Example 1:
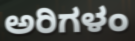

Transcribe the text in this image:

ಅರಿಗಳಂ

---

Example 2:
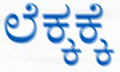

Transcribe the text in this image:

ಲೆಕ್ಕಕ್ಕೆ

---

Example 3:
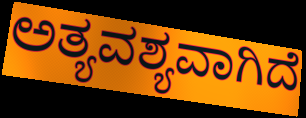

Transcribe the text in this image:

ಅತ್ಯವಶ್ಯವಾಗಿದೆ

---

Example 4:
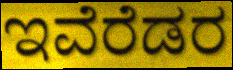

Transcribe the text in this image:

ಇವೆರೆಡರ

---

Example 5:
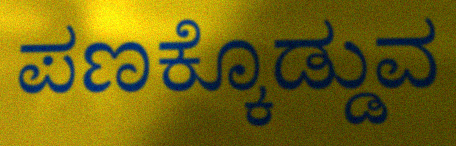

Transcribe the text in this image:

ಪಣಕ್ಕೊಡ್ಡುವ